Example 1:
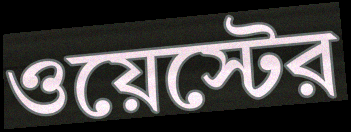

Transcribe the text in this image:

ওয়েস্টের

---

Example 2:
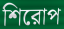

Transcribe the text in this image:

শিরোপ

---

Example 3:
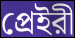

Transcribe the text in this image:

প্রেইরী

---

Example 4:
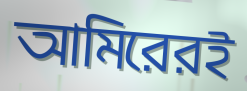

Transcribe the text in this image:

আমিরেরই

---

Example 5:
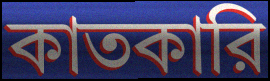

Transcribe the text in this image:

কাতকারি